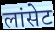
लांसेट